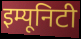
इम्‍यूनिटी